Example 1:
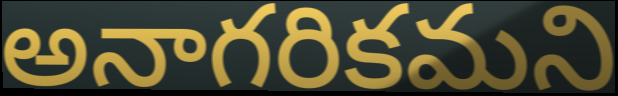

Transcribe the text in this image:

అనాగరికమని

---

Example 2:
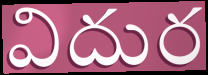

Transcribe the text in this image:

విదుర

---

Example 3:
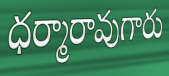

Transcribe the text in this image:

ధర్మారావుగారు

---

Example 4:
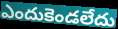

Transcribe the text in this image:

ఎందుకెండలేదు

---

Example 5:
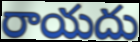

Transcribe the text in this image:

రాయదు